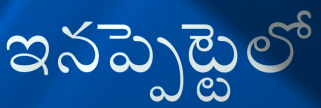
ఇనప్పెట్టెలో